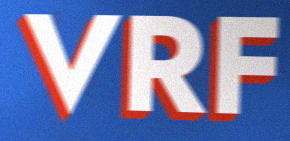
VRF